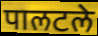
पालटले